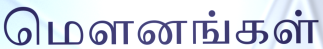
மௌனங்கள்